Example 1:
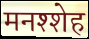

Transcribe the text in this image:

मनश्शेह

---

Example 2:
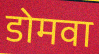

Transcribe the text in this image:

डोमवा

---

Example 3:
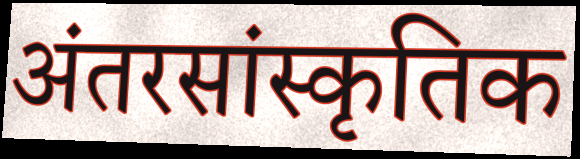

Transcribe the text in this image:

अंतरसांस्कृतिक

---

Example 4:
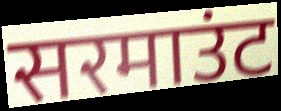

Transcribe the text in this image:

सरमाउंट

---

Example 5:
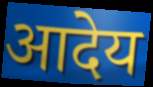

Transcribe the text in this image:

आदेय